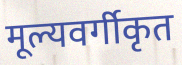
मूल्यवर्गीकृत